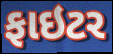
ફાઇટર